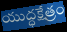
యుద్ధక్షేత్రం